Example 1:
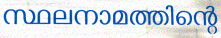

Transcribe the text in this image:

സ്ഥലനാമത്തിന്റെ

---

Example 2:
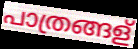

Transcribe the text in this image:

പാത്രങ്ങള്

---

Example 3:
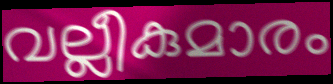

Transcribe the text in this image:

വല്ലീകുമാരം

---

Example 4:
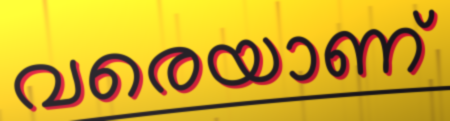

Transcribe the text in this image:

വരെയാണ്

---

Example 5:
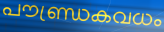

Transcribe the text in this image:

പൗണ്ഡ്രകവധം